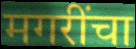
मगरींचा